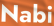
Nabi